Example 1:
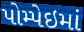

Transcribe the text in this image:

પોમ્પેઇમાં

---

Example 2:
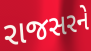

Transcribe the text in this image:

રાજસરને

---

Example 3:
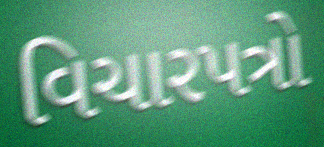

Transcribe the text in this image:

વિચારપત્રો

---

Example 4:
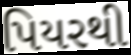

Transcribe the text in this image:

પિયરથી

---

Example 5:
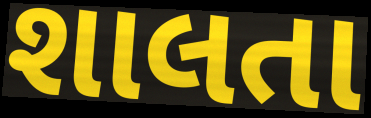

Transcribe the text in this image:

શાલતા